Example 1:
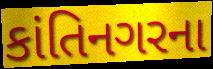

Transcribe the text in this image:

કાંતિનગરના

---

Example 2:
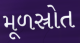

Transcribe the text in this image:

મૂળસ્રોત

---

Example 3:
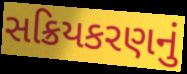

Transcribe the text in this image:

સક્રિયકરણનું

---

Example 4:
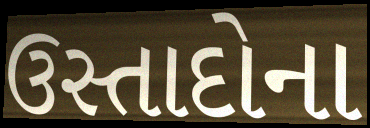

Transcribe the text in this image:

ઉસ્તાદોના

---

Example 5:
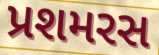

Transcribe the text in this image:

પ્રશમરસ